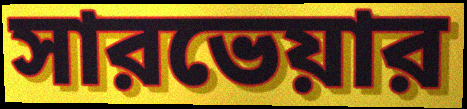
সারভেয়ার